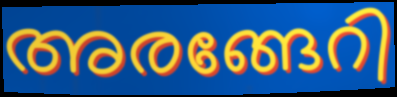
അരങ്ങേറി